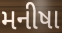
મનીષા